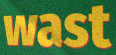
wast